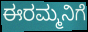
ಈರಮ್ಮನಿಗೆ